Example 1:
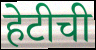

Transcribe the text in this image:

हेटीची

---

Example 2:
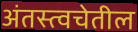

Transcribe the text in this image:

अंतस्त्वचेतील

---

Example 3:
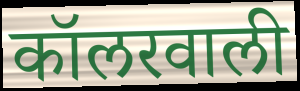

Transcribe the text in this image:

कॉलरवाली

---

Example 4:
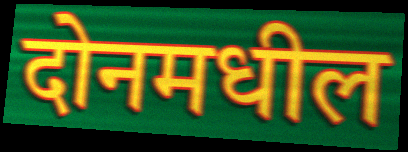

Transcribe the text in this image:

दोनमधील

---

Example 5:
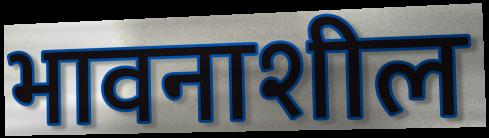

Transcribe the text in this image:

भावनाशील